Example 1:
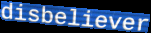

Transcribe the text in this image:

disbeliever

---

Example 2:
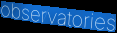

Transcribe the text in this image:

observatories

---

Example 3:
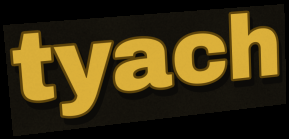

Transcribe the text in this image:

tyach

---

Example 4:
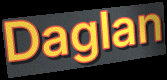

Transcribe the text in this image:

Daglan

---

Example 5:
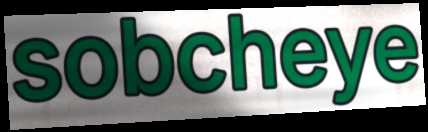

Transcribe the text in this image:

sobcheye